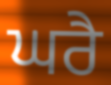
ਘਰੈ